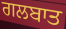
ਗਲਬਾਤ